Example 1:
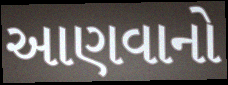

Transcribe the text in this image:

આણવાનો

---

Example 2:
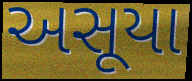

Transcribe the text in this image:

અસૂયા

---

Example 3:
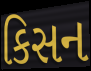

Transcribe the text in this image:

કિસન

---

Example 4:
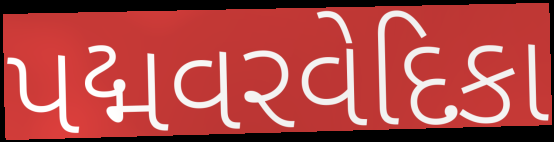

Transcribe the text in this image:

પદ્મવરવેદિકા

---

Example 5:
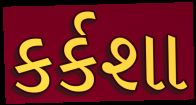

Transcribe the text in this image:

કર્કશા